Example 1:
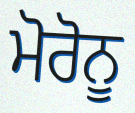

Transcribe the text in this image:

ਮੋਰੋਨੂ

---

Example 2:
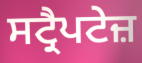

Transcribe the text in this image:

ਸਟ੍ਰੈਪਟੇਜ਼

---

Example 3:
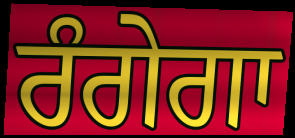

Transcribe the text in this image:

ਰੰਗੇਗਾ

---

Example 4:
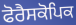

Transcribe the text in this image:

ਫੋਰੈਸਕੋਪਿਕ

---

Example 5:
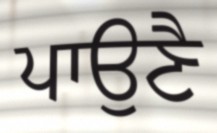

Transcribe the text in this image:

ਪਾਉਣੈ